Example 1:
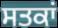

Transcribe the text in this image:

ਸਤਕਾਂ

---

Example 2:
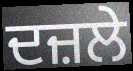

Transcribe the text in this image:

ਦਜ਼ਲੇ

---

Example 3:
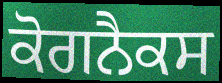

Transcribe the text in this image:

ਕੋਗਨੈਕਸ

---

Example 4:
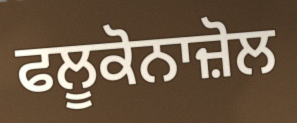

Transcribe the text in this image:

ਫਲੂਕੋਨਾਜ਼ੋਲ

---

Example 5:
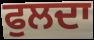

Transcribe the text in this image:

ਫੁਲਦਾ